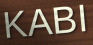
KABI